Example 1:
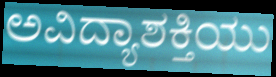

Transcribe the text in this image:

ಅವಿದ್ಯಾಶಕ್ತಿಯು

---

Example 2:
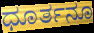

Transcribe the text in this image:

ಧೂರ್ತನೂ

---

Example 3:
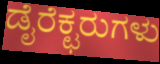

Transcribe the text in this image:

ಡೈರೆಕ್ಟರುಗಳು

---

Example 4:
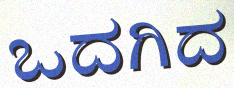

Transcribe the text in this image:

ಒದಗಿದ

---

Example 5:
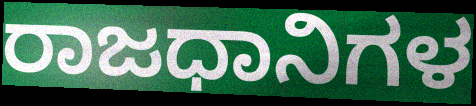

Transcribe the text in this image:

ರಾಜಧಾನಿಗಳ